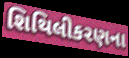
શિથિલીકરણના